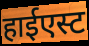
हाईएस्ट